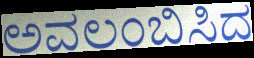
ಅವಲಂಬಿಸಿದ